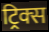
ट्रिक्‍स